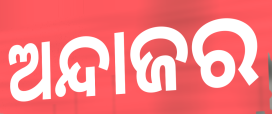
ଅନ୍ଦାଜର